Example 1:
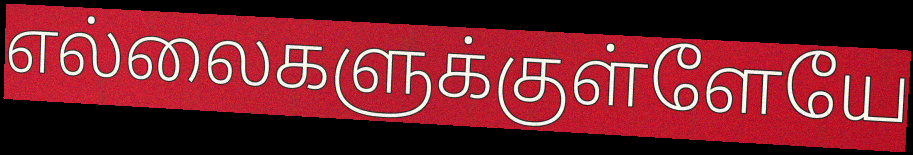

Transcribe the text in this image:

எல்லைகளுக்குள்ளேயே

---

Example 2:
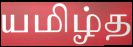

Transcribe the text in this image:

யமிழ்த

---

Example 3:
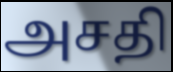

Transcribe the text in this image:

அசதி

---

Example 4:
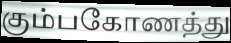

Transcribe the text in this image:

கும்பகோணத்து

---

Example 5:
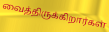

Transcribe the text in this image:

வைத்திருக்கிறார்கள்